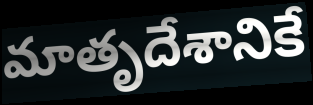
మాతృదేశానికే